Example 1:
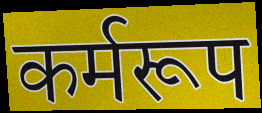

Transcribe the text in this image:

कर्मरूप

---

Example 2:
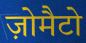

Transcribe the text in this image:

ज़ोमैटो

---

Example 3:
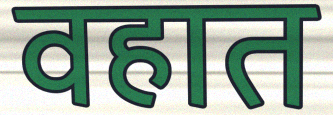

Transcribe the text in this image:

वहात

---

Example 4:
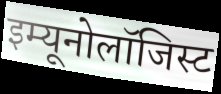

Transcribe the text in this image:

इम्यूनोलॉजिस्ट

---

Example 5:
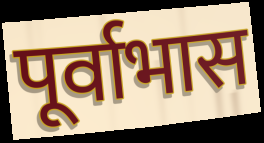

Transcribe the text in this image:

पूर्वाभास